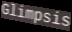
Glimpsis